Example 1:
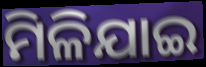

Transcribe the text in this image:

ମିଳିଯାଇ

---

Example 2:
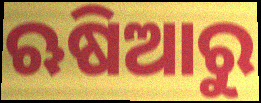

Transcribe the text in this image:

ଋଷିଆରୁ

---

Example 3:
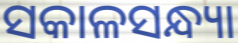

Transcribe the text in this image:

ସକାଳସନ୍ଧ୍ୟା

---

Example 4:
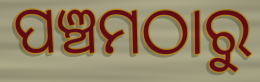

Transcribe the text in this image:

ପଞ୍ଚମଠାରୁ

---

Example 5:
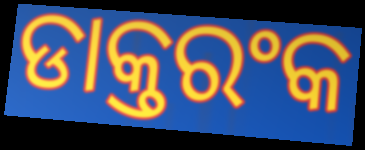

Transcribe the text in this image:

ଡାକ୍ତରଂକ